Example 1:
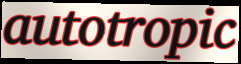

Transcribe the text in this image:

autotropic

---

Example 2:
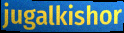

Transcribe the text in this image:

jugalkishor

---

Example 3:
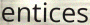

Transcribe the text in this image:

entices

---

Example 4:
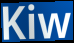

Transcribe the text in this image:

Kiw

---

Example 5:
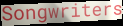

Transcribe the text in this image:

Songwriters